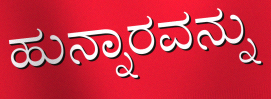
ಹುನ್ನಾರವನ್ನು